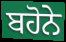
ਬਹੋਨੇ